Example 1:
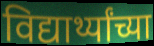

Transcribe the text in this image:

विद्यार्थ्यांच्या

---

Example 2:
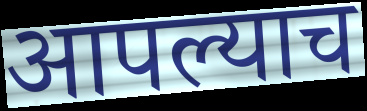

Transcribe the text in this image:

आपल्याच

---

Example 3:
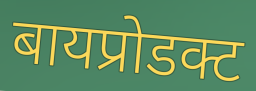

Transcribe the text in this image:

बायप्रोडक्ट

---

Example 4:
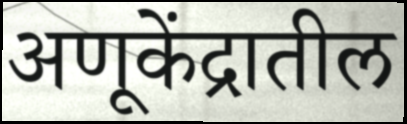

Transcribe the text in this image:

अणूकेंद्रातील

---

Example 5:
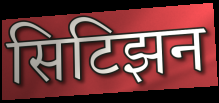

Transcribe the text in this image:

सिटिझन